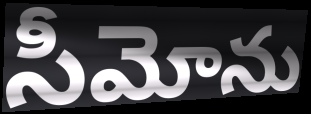
సీమోను